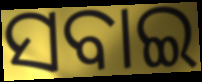
ସବାଇ